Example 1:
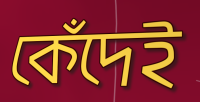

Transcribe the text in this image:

কেঁদেই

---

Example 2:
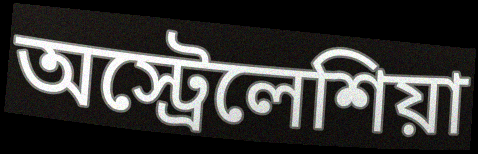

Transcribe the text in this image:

অস্ট্রেলেশিয়া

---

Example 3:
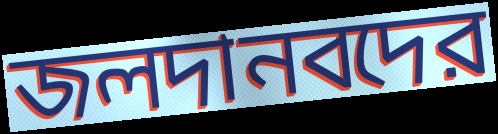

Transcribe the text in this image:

জলদানবদের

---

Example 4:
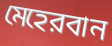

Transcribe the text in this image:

মেহেরবান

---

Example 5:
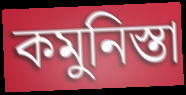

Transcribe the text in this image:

কমুনিস্তা